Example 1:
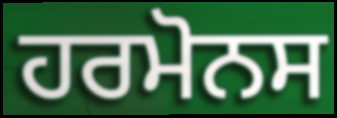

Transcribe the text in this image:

ਹਰਮੋਨਸ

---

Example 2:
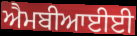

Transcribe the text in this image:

ਐਮਬੀਆਈਈ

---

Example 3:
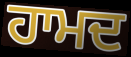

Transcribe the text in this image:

ਹਾਮਦ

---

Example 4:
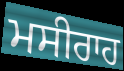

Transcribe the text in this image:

ਮਸੀਰਾਹ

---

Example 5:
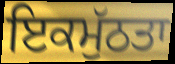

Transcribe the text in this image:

ਇਕਮੁੱਠਤਾ